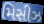
મિસીઝ